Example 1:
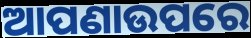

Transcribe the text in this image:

ଆପଣାଉପରେ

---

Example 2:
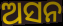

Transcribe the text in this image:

ଅସନ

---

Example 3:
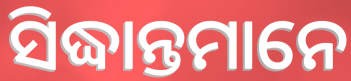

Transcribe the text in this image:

ସିଦ୍ଧାନ୍ତମାନେ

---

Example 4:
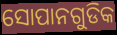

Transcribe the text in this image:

ସୋପାନଗୁଡିକ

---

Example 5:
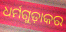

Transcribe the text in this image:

ଧର୍ମଗୁଡ଼ାକର